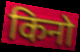
किनो